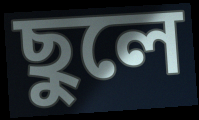
ছুলে